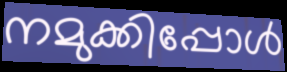
നമുക്കിപ്പോൾ